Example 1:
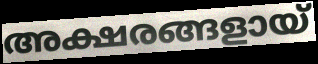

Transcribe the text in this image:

അക്ഷരങ്ങളായ്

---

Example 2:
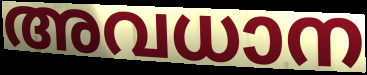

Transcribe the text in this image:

അവധാന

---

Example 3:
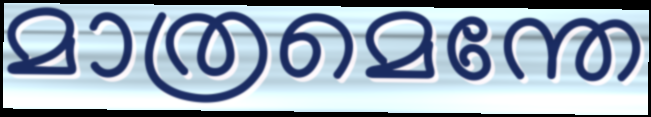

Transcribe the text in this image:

മാത്രമെന്തേ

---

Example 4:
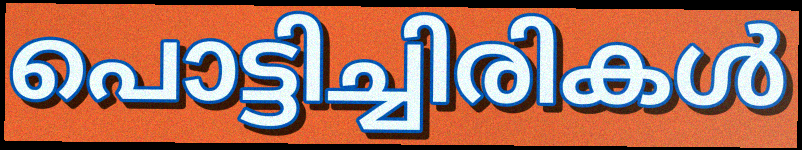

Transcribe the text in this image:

പൊട്ടിച്ചിരികൾ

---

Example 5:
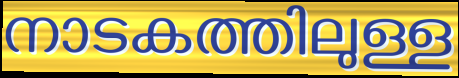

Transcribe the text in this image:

നാടകത്തിലുള്ള